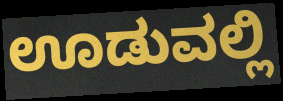
ಊಡುವಲ್ಲಿ